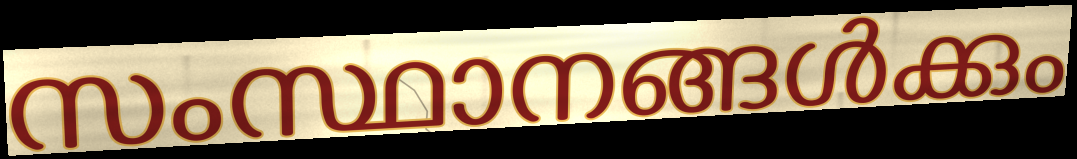
സംസ്ഥാനങ്ങൾക്കും